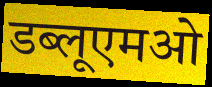
डब्लूएमओ